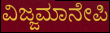
ವಿಜ್ಜಮಾನೇಪಿ